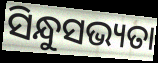
ସିନ୍ଧୁସଭ୍ୟତା